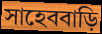
সাহেববাড়ি